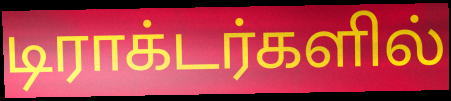
டிராக்டர்களில்